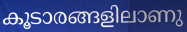
കൂടാരങ്ങളിലാണു